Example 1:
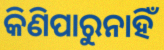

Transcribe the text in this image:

କିଣିପାରୁନାହିଁ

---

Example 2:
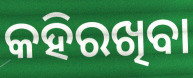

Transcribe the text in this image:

କହିରଖିବା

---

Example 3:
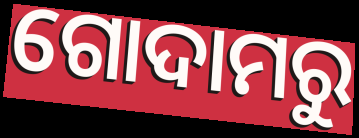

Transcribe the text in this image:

ଗୋଦାମରୁ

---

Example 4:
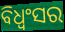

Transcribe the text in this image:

ବିଧ୍ୱଂସର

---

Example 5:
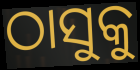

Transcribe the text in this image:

ଠାସୁକୁ